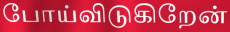
போய்விடுகிறேன்